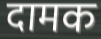
दामक